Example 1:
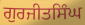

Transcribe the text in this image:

ਗੁਰਜੀਤਸਿੰਘ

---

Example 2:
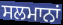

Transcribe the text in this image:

ਸਲਮਾਨਾਂ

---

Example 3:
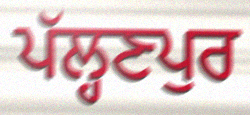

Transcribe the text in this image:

ਪੱਲ੍ਹਣਪੁਰ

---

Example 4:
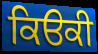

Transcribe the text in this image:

ਕਿੳਕੀ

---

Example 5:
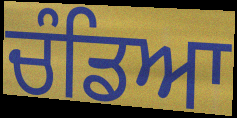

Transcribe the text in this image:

ਚੰਡਿਆ